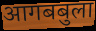
आगबबुला